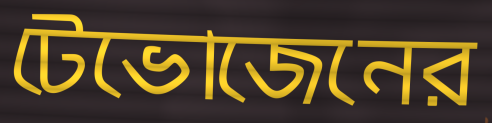
টেভোজেনের